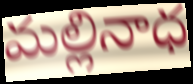
మల్లినాధ